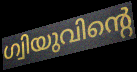
ഗ്വിയുവിന്റെ